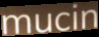
mucin